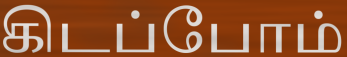
கிடப்போம்